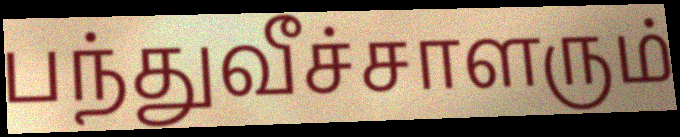
பந்துவீச்சாளரும்